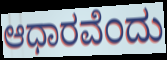
ಆಧಾರವೆಂದು